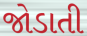
જોડાતી